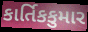
કાર્તિકકુમાર